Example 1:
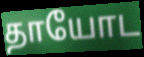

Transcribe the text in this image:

தாயோட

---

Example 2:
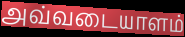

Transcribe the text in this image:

அவ்வடையாளம்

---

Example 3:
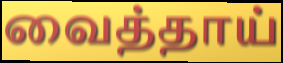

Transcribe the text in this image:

வைத்தாய்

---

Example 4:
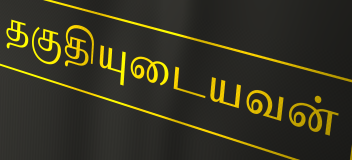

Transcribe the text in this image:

தகுதியுடையவன்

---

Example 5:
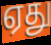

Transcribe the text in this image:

ஏது